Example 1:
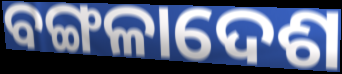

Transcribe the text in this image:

ବଙ୍ଗଳାଦେଶ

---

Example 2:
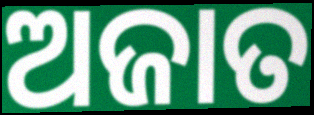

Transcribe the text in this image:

ଅଜାତ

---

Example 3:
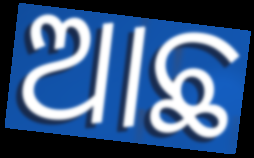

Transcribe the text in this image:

ଆଛ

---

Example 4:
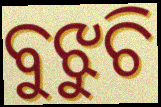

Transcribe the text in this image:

ବୁଝୁଚି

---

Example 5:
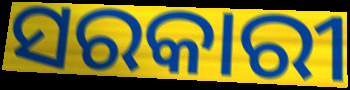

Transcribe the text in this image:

ସରକାରୀ